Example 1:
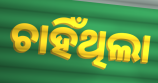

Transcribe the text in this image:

ଚାହିଁଥିଲା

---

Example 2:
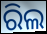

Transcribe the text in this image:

ରିଲ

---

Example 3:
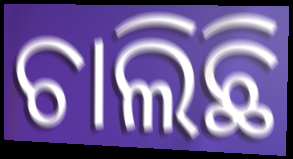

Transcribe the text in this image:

ଚାଲିଛି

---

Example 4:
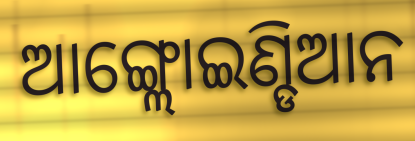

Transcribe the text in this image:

ଆଙ୍ଗ୍ଲୋଇଣ୍ଡିଆନ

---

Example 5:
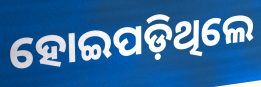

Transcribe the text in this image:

ହୋଇପଡ଼ିଥିଲେ